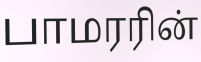
பாமரரின்